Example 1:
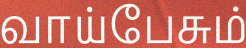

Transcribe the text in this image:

வாய்பேசும்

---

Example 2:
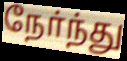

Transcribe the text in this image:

நேர்ந்து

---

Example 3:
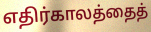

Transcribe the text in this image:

எதிர்காலத்தைத்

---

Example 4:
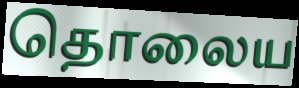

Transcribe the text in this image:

தொலைய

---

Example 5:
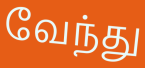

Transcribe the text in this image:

வேந்து